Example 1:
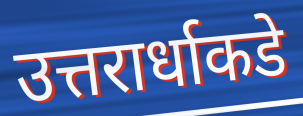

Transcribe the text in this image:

उत्तरार्धाकडे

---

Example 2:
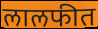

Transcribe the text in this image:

लालफीत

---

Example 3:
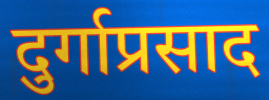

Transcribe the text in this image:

दुर्गाप्रसाद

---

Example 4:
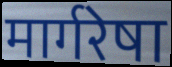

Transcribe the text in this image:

मार्गरेषा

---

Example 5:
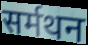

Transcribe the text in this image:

सर्मथन